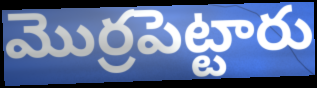
మొర్రపెట్టారు